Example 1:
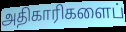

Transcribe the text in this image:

அதிகாரிகளைப்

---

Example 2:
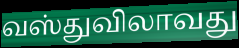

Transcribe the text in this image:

வஸ்துவிலாவது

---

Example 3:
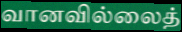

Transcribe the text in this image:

வானவில்லைத்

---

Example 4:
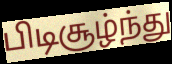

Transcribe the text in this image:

பிடிசூழ்ந்து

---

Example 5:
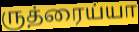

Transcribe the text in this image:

ருத்ரைய்யா